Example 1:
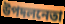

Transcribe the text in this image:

উপদলনেতা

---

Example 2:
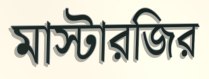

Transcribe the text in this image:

মাস্টারজির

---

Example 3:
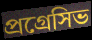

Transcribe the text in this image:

প্রগ্রেসিভ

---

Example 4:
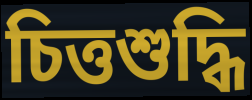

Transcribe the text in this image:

চিত্তশুদ্ধি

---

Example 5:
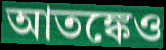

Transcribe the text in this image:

আতঙ্কেও